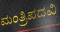
ಮಂತ್ರಿಪದವಿ